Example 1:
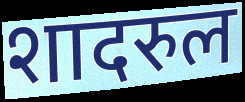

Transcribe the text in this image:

शादरुल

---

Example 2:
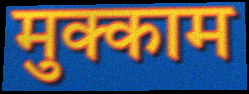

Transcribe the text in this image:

मुक्काम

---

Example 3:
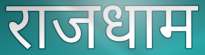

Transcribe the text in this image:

राजधाम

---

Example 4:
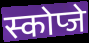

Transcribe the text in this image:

स्कोप्जे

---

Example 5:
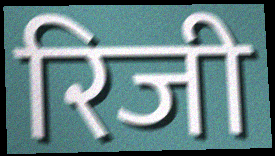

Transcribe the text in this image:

रिजी